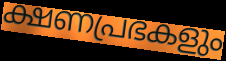
ക്ഷണപ്രഭകളും